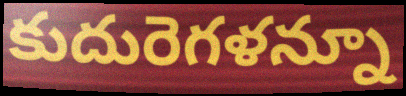
కుదురెగళన్నూ